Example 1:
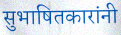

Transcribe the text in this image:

सुभाषितकारांनी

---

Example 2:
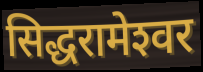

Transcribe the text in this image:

सिद्धरामेश्‍वर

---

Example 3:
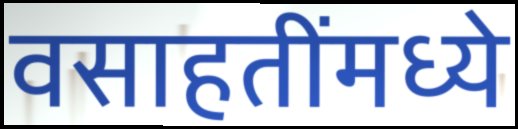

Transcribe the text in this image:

वसाहतींमध्ये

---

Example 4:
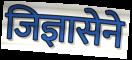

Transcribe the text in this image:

जिज्ञासेने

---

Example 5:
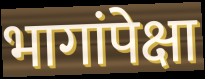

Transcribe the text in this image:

भागांपेक्षा